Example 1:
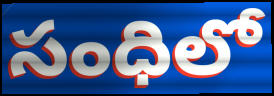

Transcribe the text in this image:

సంధిలో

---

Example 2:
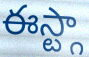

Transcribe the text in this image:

ఈస్ట్గా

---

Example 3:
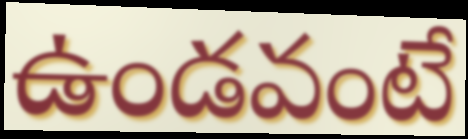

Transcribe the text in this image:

ఉండవంటే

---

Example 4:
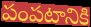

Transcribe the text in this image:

పంపటానికి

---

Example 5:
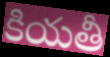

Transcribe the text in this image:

కియతీ